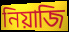
নিয়াজি